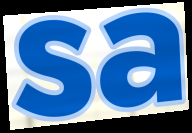
sa